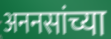
अननसांच्या